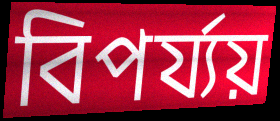
বিপৰ্য্যয়